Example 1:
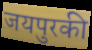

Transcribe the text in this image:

जयपुरकी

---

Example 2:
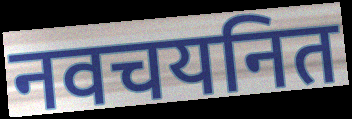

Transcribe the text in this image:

नवचयनित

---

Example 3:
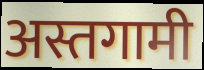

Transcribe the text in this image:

अस्तगामी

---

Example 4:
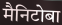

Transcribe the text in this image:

मैनिटोबा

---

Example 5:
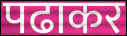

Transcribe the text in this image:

पढाकर